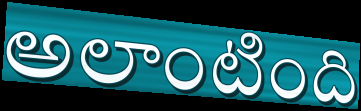
అలాంటింది